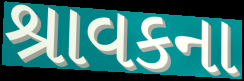
શ્રાવકના